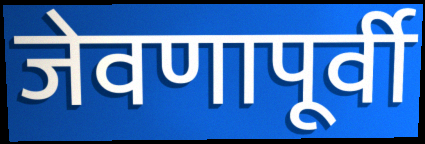
जेवणापूर्वी